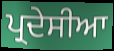
ਪ੍ਰਦੇਸੀਆ